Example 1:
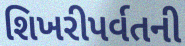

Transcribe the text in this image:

શિખરીપર્વતની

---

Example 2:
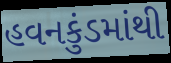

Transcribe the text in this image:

હવનકુંડમાંથી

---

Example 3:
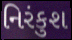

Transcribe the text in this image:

નિરંકુશ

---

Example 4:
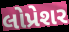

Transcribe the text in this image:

લોપ્રેશર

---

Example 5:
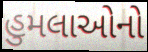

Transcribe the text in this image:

હુમલાઓનો